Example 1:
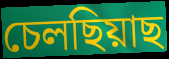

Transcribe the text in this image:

চেলছিয়াছ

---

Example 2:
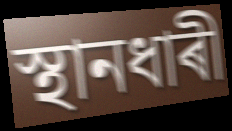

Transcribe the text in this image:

স্থানধাৰী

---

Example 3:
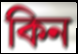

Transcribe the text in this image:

কিন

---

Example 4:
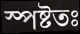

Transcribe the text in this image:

স্পষ্টতঃ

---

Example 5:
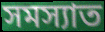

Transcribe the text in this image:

সমস্যাত